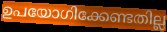
ഉപയോഗിക്കേണ്ടതില്ല